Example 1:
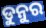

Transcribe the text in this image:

ଡୁନୁର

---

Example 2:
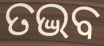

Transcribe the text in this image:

ତଦ୍ଭବ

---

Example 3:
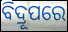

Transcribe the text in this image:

ବିଦ୍ରୂପରେ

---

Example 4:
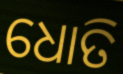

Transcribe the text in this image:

ଧୋତି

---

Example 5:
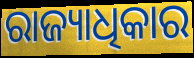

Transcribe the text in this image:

ରାଜ୍ୟାଧିକାର